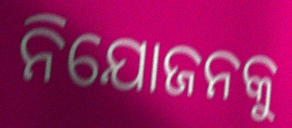
ନିଯୋଜନକୁ